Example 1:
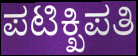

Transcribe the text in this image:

ಪಟಿಕ್ಖಿಪತಿ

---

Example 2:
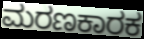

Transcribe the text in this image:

ಮರಣಕಾರಕ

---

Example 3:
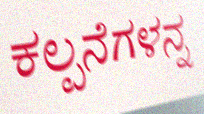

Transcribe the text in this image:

ಕಲ್ಪನೆಗಳನ್ನ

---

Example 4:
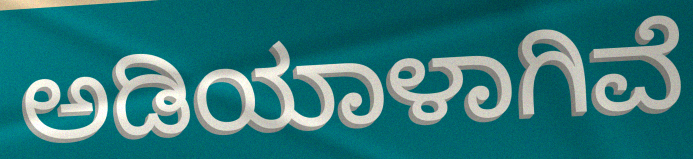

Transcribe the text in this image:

ಅಡಿಯಾಳಾಗಿವೆ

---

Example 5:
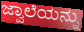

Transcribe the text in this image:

ಜ್ವಾಲೆಯನ್ನು